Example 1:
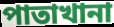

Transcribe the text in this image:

পাতাখানা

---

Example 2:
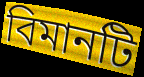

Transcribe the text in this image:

বিমানটি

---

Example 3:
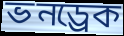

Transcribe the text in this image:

ভনড্রেক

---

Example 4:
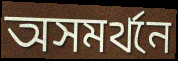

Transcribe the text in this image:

অসমর্থনে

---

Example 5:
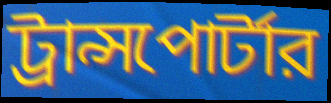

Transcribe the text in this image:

ট্রান্সপোর্টার